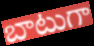
బాటుగా